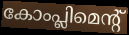
കോംപ്ലിമെന്റ്